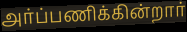
அர்ப்பணிக்கின்றார்